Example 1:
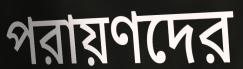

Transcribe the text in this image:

পরায়ণদের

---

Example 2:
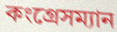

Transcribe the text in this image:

কংগ্রেসম্যান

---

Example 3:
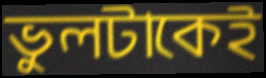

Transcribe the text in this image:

ভুলটাকেই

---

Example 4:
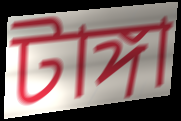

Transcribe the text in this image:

টাঙ্গা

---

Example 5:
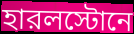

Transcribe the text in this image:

হারলস্টোনে